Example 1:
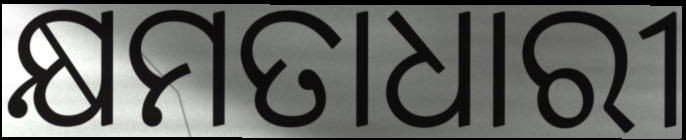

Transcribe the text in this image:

କ୍ଷମତାଧାରୀ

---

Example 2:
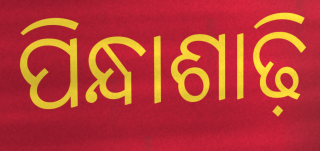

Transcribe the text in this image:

ପିନ୍ଧାଶାଢ଼ି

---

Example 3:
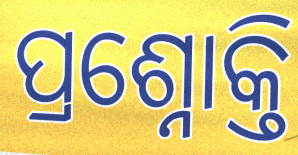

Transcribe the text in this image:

ପ୍ରଶ୍ନୋକ୍ତି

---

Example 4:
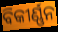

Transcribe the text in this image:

ବିକୀର୍ଣ୍ଣନ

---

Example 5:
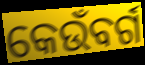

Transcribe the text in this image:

କେଉଁବର୍ଗ